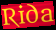
Rida